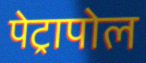
पेट्रापोल